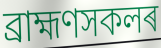
ব্ৰাহ্মণসকলৰ